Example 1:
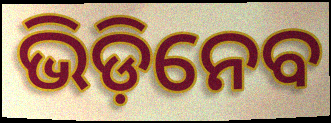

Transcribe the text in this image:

ଭିଡ଼ିନେବ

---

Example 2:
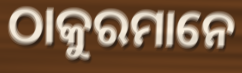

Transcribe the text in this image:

ଠାକୁରମାନେ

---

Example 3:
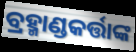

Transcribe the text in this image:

ବ୍ରହ୍ମାଣ୍ଡକର୍ତ୍ତାଙ୍କ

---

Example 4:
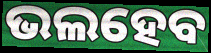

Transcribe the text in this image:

ଭଲହେବ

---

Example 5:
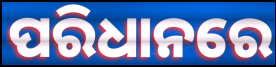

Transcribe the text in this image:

ପରିଧାନରେ